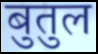
बुतुल